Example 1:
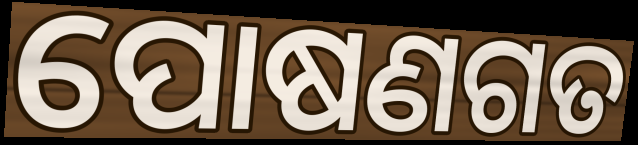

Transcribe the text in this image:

ପୋଷଣଗତ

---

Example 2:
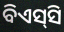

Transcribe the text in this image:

ବିଏସ୍‌ସି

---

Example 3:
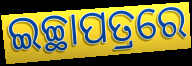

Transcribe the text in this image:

ଇଚ୍ଛାପତ୍ରରେ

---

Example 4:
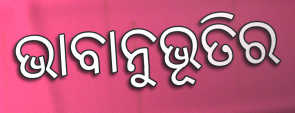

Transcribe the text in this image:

ଭାବାନୁଭୂତିର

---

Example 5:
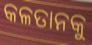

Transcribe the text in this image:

କଳତାନକୁ